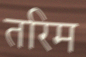
तरिम